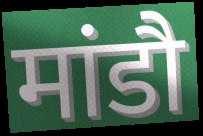
मांडौ